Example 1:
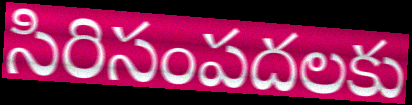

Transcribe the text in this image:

సిరిసంపదలకు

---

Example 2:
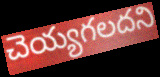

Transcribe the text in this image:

చెయ్యగలదని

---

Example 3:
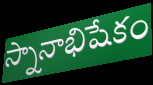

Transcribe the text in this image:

స్నానాభిషేకం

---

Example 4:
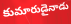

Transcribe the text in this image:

కుమారుడైనాడు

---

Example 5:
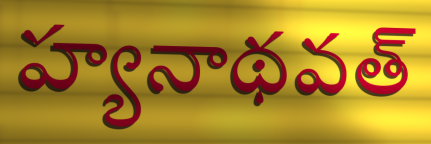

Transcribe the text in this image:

హ్యనాథవత్